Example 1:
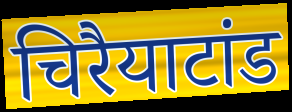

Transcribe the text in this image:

चिरैयाटांड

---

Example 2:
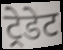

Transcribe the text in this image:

ट्रेडेट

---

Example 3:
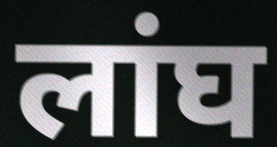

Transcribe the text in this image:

लांघ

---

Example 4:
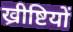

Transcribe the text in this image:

ख्रीष्टियों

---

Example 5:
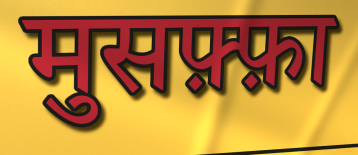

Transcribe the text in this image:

मुसफ़्फ़ा